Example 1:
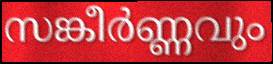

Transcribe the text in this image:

സങ്കീർണ്ണവും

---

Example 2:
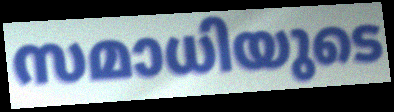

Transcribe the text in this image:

സമാധിയുടെ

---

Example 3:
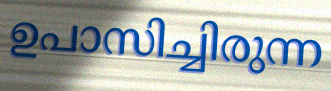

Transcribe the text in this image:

ഉപാസിച്ചിരുന്ന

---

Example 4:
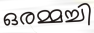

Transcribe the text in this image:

ഒരമ്മച്ചി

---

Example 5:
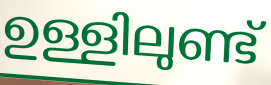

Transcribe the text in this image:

ഉള്ളിലുണ്ട്